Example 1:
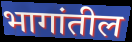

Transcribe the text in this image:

भागांतील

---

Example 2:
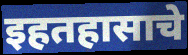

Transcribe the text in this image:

इहतहासाचे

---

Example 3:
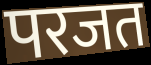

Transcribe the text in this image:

परजत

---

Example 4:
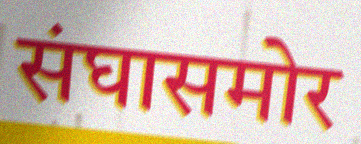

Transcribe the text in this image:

संघासमोर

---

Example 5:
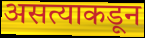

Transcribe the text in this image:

असत्याकडून